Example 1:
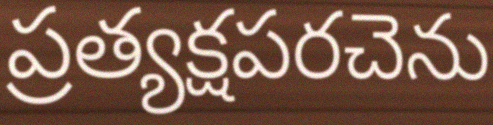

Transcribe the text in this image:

ప్రత్యక్షపరచెను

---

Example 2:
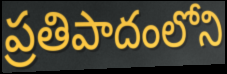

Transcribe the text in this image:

ప్రతిపాదంలోని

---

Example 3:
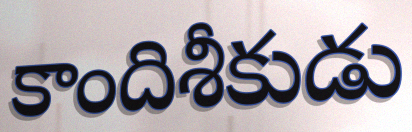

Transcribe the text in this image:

కాందిశీకుడు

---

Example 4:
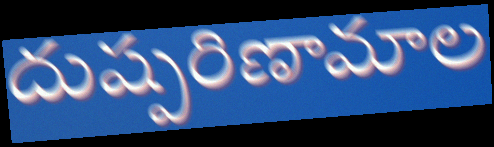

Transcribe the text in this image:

దుష్పరిణామాల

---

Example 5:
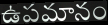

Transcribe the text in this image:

ఉపమానం